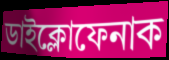
ডাইক্লোফেনাক